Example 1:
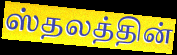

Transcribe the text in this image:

ஸ்தலத்தின்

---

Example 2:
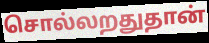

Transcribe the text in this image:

சொல்லறதுதான்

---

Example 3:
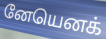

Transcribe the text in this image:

னேயெனக்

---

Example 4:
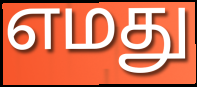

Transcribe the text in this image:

எமது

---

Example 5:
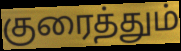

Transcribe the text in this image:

குரைத்தும்